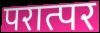
परात्पर